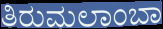
ತಿರುಮಲಾಂಬಾ